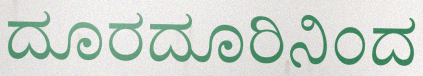
ದೂರದೂರಿನಿಂದ